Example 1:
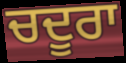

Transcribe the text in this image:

ਚਦੂਰਾ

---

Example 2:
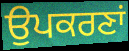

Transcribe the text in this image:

ਉਪਕਰਣਾਂ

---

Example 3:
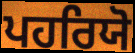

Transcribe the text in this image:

ਪਹਰਿਯੋ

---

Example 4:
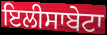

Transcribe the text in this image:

ਇਲੀਸਾਬੇਟਾ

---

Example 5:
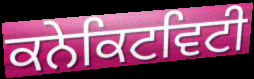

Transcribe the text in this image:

ਕਨੇਕਿਟਵਿਟੀ